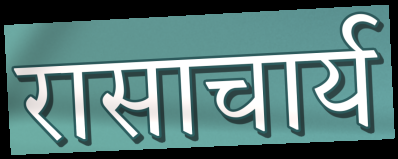
रासाचार्य